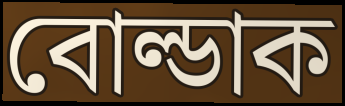
বোল্ডাক